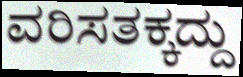
ವರಿಸತಕ್ಕದ್ದು